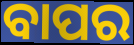
ବାପର